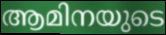
ആമിനയുടെ